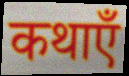
कथाएँ